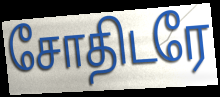
சோதிடரே